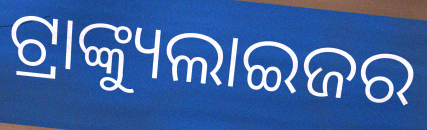
ଟ୍ରାଙ୍କ୍ୟୁଲାଇଜର